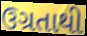
ઉગ્રતાથી